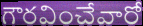
గౌరవించేవారో